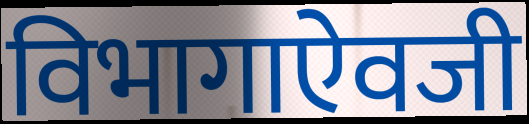
विभागाऐवजी